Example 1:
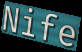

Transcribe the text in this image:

Nife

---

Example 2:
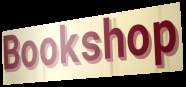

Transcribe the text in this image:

Bookshop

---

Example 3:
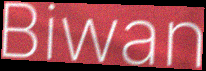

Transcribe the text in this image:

Biwan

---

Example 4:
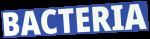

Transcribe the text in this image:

BACTERIA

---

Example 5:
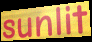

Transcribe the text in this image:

sunlit